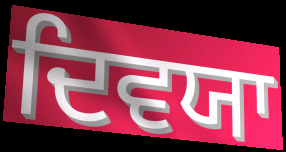
ਦਿਵਯਾ